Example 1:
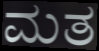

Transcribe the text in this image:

ಮತ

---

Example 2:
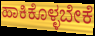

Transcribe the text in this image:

ಹಾಕಿಕೊಳ್ಳಬೇಕೆ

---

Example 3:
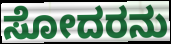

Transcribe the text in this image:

ಸೋದರನು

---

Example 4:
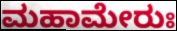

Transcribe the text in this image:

ಮಹಾಮೇರುಃ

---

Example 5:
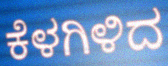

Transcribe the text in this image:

ಕೆಳಗಿಳಿದ